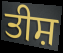
ਤੀਸ਼